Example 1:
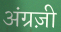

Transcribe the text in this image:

अंग्रज़ी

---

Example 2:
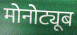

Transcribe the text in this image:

मोनोट्यूब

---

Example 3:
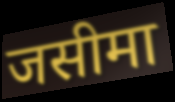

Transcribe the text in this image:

जसीमा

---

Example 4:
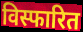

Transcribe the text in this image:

विस्फारित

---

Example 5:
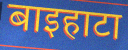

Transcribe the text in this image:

बाइहाटा